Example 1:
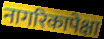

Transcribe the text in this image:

नागरिकापेक्षा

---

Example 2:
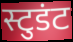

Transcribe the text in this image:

स्टुडंट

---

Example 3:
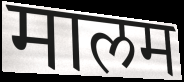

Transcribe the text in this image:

मालम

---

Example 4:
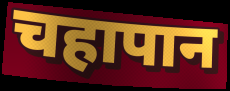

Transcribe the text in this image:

चहापान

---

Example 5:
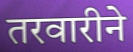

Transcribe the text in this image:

तरवारीने